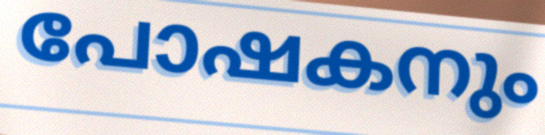
പോഷകനും